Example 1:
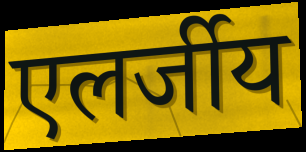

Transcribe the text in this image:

एलर्जीय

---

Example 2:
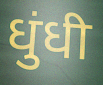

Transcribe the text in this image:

धुंधी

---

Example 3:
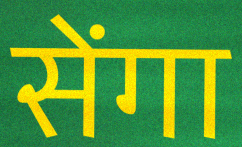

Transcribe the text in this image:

सेंगा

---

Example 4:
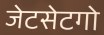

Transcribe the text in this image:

जेटसेटगो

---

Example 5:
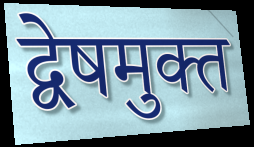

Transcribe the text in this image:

द्वेषमुक्त